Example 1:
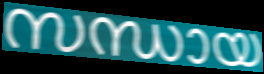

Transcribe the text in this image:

സന്ധായ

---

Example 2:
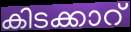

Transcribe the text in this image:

കിടക്കാറ്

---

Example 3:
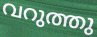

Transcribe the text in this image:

വറുത്തു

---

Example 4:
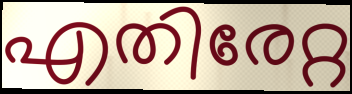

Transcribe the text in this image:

എതിരേറ്റ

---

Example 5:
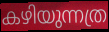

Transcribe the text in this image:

കഴിയുന്നത്ര